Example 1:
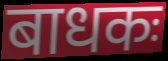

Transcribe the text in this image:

बाधकः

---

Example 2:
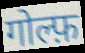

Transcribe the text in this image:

गोल्फ़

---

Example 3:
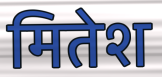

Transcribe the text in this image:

मितेश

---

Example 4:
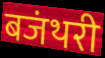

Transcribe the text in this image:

बजंथरी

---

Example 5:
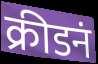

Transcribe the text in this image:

क्रीडनं